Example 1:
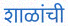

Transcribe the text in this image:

शाळांची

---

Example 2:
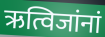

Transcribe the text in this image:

ऋत्विजांनां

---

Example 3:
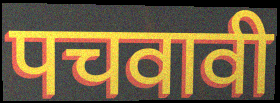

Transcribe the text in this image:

पचवावी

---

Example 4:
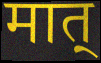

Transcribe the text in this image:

मात्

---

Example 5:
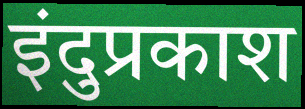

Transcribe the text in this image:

इंदुप्रकाश